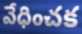
వేధించక